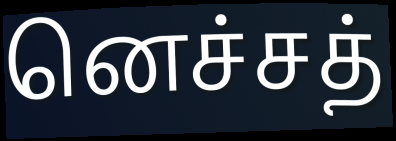
னெச்சத்